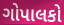
ગોપાલકો